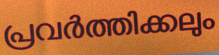
പ്രവർത്തിക്കലും